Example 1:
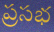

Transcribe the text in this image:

ప్రసభ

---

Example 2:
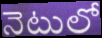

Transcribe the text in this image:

నెటులో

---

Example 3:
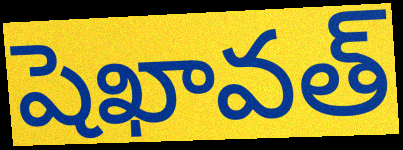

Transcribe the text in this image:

షెఖావత్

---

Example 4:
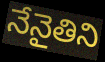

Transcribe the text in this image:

నేనైతిని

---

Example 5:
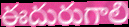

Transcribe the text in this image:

ఈదురుగాలి